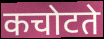
कचोटते